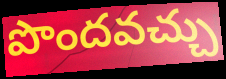
పొందవచ్చు